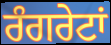
ਰੰਗਰੇਟਾਂ